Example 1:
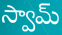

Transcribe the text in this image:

స్వామ్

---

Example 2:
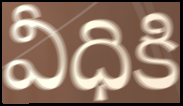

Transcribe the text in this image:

వీధికి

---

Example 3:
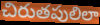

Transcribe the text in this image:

చిరుతపులిలా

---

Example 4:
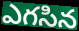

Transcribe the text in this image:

ఎగసిన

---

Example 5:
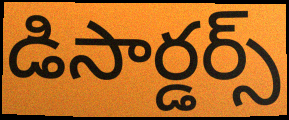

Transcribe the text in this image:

డిసార్డర్స్